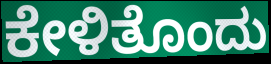
ಕೇಳಿತೊಂದು